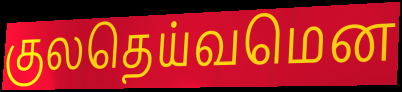
குலதெய்வமென